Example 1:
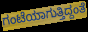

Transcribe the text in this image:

ಗಂಟೆಯಾಗುತ್ತಿದ್ದಂತೆ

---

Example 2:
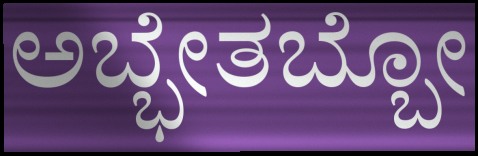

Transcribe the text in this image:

ಅಬ್ಭೇತಬ್ಬೋ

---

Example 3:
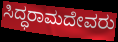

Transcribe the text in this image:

ಸಿದ್ಧರಾಮದೇವರು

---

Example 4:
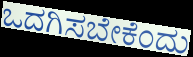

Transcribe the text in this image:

ಒದಗಿಸಬೇಕೆಂದು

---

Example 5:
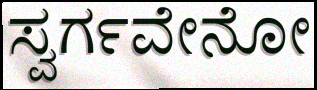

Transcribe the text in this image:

ಸ್ವರ್ಗವೇನೋ